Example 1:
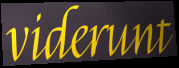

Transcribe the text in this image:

viderunt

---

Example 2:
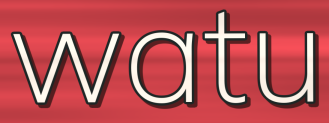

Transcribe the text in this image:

watu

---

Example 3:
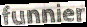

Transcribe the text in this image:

funnier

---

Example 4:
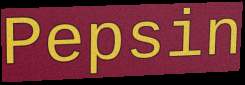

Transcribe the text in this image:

Pepsin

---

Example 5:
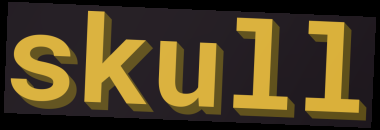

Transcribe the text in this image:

skull